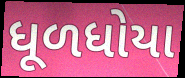
ધૂળધોયા